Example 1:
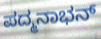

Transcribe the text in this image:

ಪದ್ಮನಾಭನ್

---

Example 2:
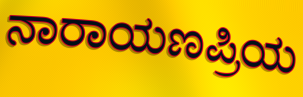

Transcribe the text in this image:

ನಾರಾಯಣಪ್ರಿಯ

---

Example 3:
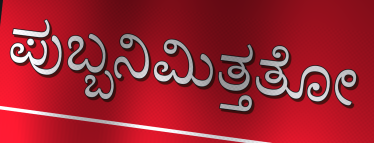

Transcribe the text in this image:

ಪುಬ್ಬನಿಮಿತ್ತತೋ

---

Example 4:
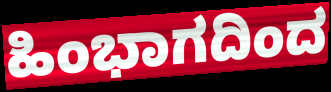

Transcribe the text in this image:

ಹಿಂಭಾಗದಿಂದ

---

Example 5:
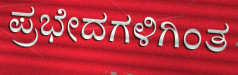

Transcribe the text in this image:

ಪ್ರಭೇದಗಳಿಗಿಂತ